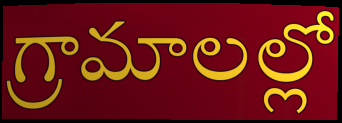
గ్రామాలల్లో